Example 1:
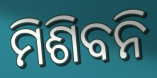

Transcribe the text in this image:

ମିଶିବନି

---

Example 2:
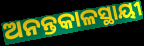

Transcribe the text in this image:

ଅନନ୍ତକାଳସ୍ଥାୟୀ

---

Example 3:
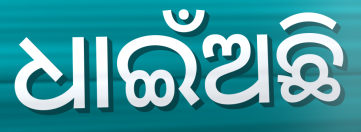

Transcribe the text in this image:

ଧାଇଁଅଛି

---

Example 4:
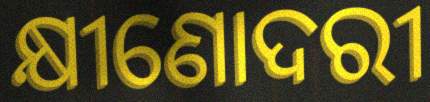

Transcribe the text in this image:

କ୍ଷୀଣୋଦରୀ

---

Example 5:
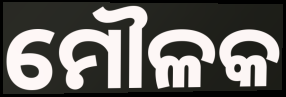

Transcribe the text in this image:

ମୌଳକ